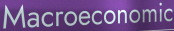
Macroeconomic